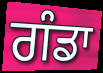
ਗੰਡਾ